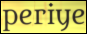
periye